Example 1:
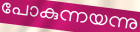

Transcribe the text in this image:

പോകുന്നയന്നു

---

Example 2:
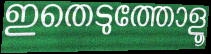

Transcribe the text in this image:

ഇതെടുത്തോളൂ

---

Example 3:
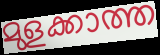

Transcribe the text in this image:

മുളക്കാത്ത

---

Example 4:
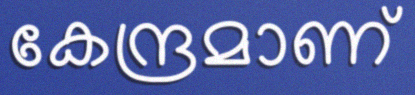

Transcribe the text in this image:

കേന്ദ്രമാണ്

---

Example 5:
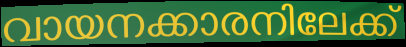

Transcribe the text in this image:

വായനക്കാരനിലേക്ക്